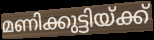
മണിക്കുട്ടിയ്ക്ക്